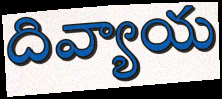
దివ్యాయ